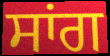
ਸਾਂਗ